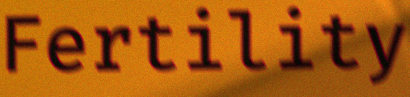
Fertility